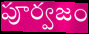
పూర్వజం